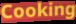
Cooking